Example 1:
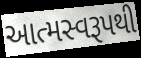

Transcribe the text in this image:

આત્મસ્વરૂપથી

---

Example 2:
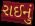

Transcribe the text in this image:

રાઈનું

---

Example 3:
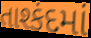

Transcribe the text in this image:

તાશ્કંદમાં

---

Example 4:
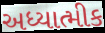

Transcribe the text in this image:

અધ્યાત્મીક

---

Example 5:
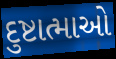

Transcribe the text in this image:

દુષ્ટાત્માઓ